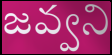
జవ్వని